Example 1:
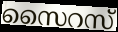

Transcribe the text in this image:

സൈറസ്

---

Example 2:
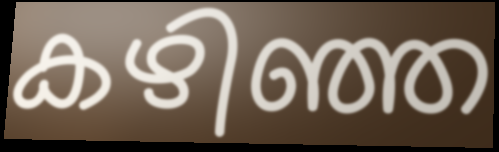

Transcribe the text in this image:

കഴിഞ്ഞ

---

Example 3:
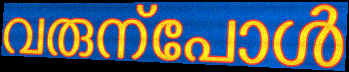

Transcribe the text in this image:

വരുന്പോൾ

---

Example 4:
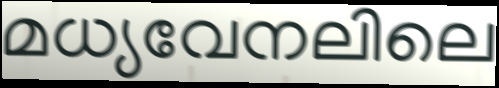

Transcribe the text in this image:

മധ്യവേനലിലെ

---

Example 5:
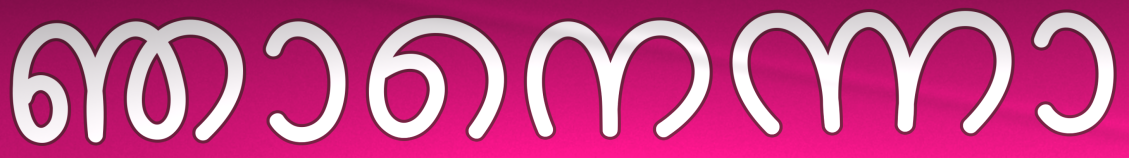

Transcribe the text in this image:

ഞാനെന്നാ